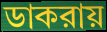
ডাকরায়